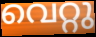
വെറ്റു